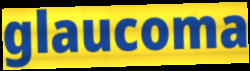
glaucoma